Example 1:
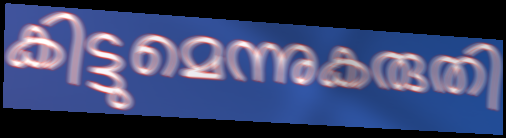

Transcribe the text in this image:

കിട്ടുമെന്നുകരുതി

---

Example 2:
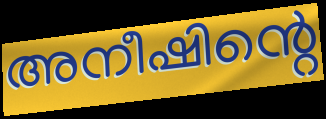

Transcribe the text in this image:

അനീഷിന്റെ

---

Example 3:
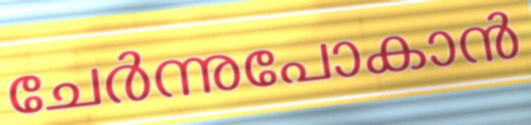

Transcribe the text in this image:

ചേർന്നുപോകാൻ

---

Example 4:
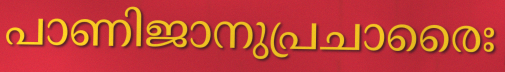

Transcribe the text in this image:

പാണിജാനുപ്രചാരൈഃ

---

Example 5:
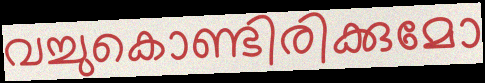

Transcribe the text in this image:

വച്ചുകൊണ്ടിരിക്കുമോ